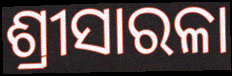
ଶ୍ରୀସାରଳା